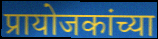
प्रायोजकांच्या